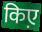
किए़